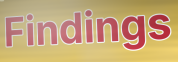
Findings